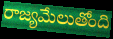
రాజ్యమేలుతోంది